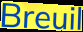
Breuil